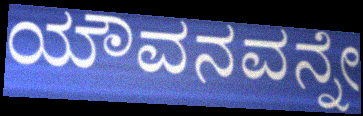
ಯೌವನವನ್ನೇ